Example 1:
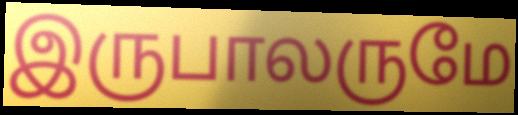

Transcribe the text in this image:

இருபாலருமே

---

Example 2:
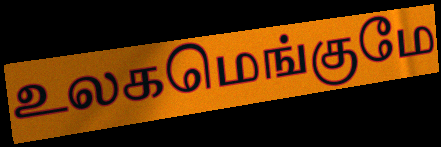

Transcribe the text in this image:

உலகமெங்குமே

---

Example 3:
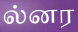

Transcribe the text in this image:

ல்னர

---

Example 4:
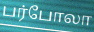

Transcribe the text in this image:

பர்போலா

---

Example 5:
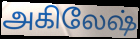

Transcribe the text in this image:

அகிலேஷ்